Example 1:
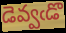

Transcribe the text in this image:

డెవ్వఁడొ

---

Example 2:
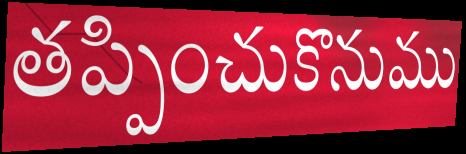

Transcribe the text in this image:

తప్పించుకొనుము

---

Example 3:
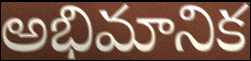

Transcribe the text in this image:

అభిమానిక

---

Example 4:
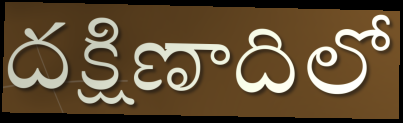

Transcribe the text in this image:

దక్షిణాదిలో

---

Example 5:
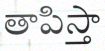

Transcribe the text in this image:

తాపిస్తా